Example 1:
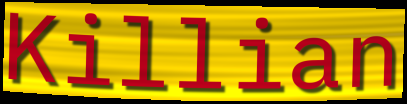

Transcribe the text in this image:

Killian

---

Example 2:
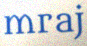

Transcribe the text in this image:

mraj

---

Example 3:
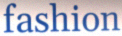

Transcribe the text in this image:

fashion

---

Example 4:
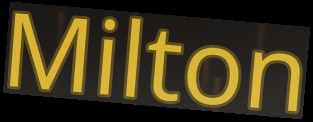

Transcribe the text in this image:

Milton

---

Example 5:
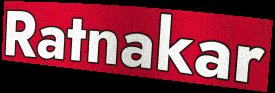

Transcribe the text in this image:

Ratnakar